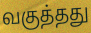
வகுத்தது